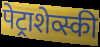
पेट्राशेव्स्की